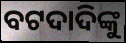
ବଟଦାଦିଙ୍କୁ